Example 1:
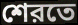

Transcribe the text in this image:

শেরতে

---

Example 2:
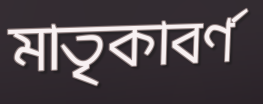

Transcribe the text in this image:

মাতৃকাবর্ণ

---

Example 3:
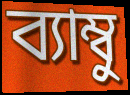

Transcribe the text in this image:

ব্যাম্বু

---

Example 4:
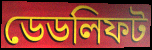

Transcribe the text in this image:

ডেডলিফট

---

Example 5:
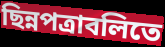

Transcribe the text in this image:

ছিন্নপত্রাবলিতে